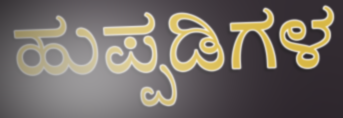
ಹುಪ್ಪಡಿಗಳ